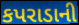
કપરાડાની